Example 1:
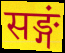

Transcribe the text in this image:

सङ्गं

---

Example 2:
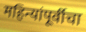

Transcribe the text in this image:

महिन्यांपूर्वीचा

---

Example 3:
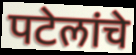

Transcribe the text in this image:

पटेलांचे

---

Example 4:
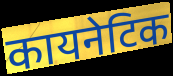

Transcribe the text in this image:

कायनेटिक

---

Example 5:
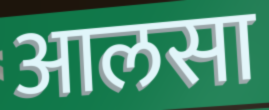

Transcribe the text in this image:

आलसा